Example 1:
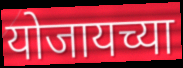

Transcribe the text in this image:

योजायच्या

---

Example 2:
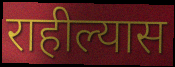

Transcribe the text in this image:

राहील्यास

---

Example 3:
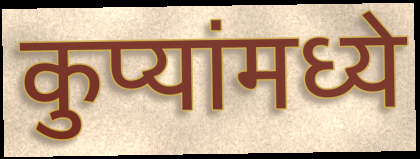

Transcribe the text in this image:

कुप्यांमध्ये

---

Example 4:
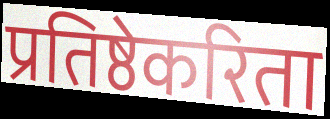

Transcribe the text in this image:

प्रतिष्ठेकरिता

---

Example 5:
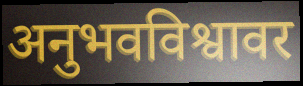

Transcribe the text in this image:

अनुभवविश्वावर